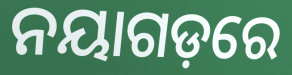
ନୟାଗଡ଼ରେ